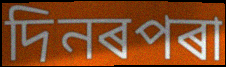
দিনৰপৰা